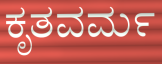
ಕೃತವರ್ಮ